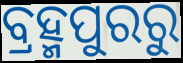
ବ୍ରହ୍ମପୁରରୁ